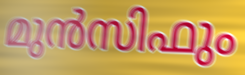
മുൻസിഫും